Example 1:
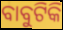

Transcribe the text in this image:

ବାବୁଟିକି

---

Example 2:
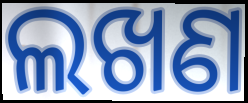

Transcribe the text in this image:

ଲଖଣ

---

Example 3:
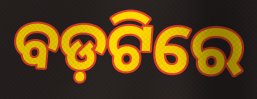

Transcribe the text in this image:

ବଡ଼ଟିରେ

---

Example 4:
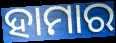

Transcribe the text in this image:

ହାମାର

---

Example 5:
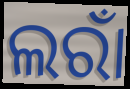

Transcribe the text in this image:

ଲରାଁ